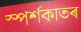
স্পৰ্শকাতৰ